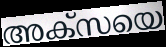
അക്സയെ